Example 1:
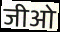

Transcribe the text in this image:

जीओ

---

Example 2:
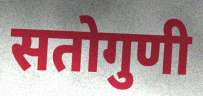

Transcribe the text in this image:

सतोगुणी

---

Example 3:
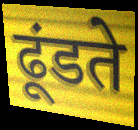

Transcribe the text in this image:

ढूंडते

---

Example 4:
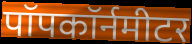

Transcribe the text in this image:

पॉपकॉर्नमीटर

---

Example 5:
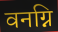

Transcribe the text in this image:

वनग्नि